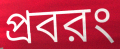
প্রবরং